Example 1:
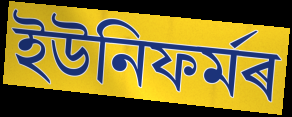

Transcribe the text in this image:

ইউনিফৰ্মৰ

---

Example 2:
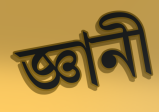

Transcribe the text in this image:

জ্ঞানী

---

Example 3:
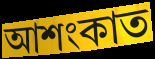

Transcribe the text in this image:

আশংকাত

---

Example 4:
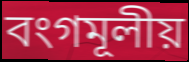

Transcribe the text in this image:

বংগমূলীয়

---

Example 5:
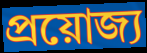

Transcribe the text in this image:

প্ৰয়োজ্য়